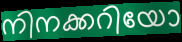
നിനക്കറിയോ